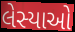
લેસ્યાઓ